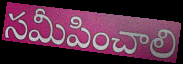
సమీపించాలి